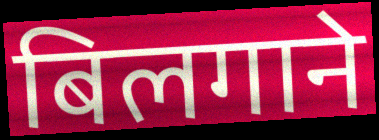
बिलगाने